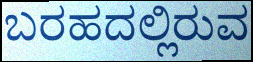
ಬರಹದಲ್ಲಿರುವ